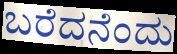
ಬರೆದನೆಂದು